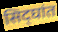
सिद्घांत